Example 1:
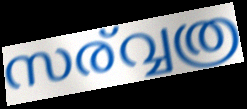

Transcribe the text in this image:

സര്വ്വത്ര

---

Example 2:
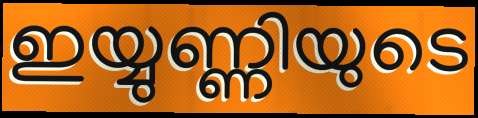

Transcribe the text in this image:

ഇയ്യുണ്ണിയുടെ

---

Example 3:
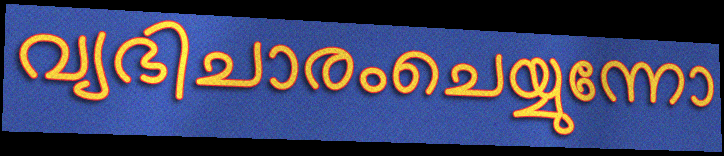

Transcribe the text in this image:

വ്യഭിചാരംചെയ്യുന്നോ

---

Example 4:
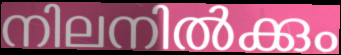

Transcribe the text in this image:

നിലനിൽക്കും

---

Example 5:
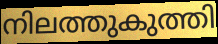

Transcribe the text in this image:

നിലത്തുകുത്തി